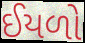
ઈયળો